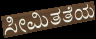
ಸೀಮಿತತೆಯ